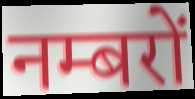
नम्बरों